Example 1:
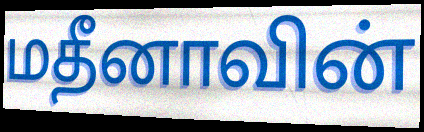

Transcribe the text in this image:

மதீனாவின்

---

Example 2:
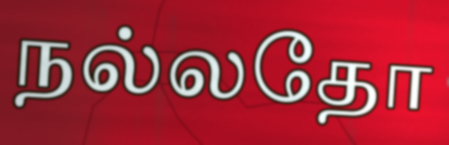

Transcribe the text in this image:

நல்லதோ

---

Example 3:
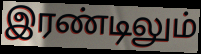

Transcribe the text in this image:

இரண்டிலும்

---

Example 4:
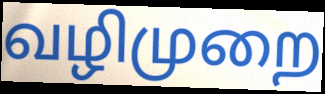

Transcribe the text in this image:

வழிமுறை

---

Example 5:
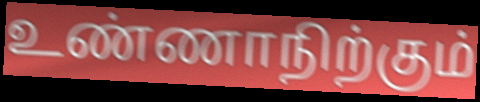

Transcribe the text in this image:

உண்ணாநிற்கும்